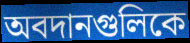
অবদানগুলিকে